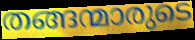
തങ്ങന്മാരുടെ